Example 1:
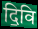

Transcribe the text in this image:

दि॒वि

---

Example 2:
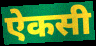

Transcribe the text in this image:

ऐकसी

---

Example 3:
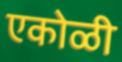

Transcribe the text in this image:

एकोळी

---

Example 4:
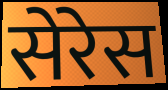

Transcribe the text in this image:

सेरेस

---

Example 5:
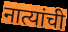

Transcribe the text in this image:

नात्यांची